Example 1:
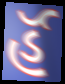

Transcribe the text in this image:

ર્હૅ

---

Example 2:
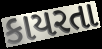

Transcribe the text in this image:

કાયરતા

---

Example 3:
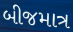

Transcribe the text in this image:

બીજમાત્ર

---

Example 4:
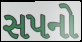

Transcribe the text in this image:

સપનો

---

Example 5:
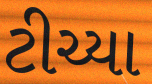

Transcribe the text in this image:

ટીચ્યા